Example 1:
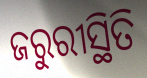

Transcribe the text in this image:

ଜରୁରୀସ୍ଥିତି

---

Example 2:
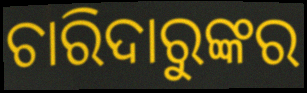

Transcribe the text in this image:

ଚାରିଦାରୁଙ୍କର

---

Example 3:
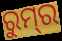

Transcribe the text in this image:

ରୁମ୍‍ର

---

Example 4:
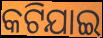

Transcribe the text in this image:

କଟିଯାଇ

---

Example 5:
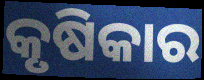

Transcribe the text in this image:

କୃଷିକାର